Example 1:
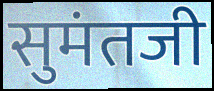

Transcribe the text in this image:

सुमंतजी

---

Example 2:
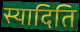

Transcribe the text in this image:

स्यादिति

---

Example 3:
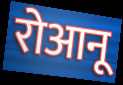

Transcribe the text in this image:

रोआनू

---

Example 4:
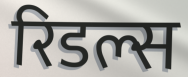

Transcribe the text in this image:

रिडल्स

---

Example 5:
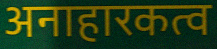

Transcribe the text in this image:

अनाहारकत्व